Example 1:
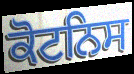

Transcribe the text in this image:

ਕੋਟਨਿਸ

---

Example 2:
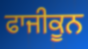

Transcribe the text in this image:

ਫਾਜੀਕੂਨ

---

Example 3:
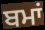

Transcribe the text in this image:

ਬਮਾਂ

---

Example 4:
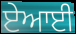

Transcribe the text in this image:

ਏਆਈ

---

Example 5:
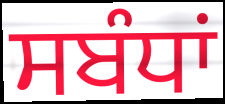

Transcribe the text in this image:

ਸਬੰਧਾਂ